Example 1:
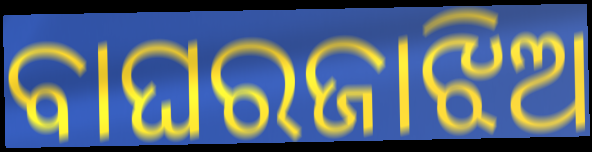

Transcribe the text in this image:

ବାଘରଜାଝିଅ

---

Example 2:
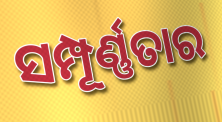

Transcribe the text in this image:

ସମ୍ପୂର୍ଣ୍ଣତାର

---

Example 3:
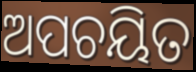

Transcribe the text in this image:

ଅପଚୟିତ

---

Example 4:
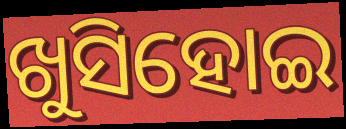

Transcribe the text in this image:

ଖୁସିହୋଇ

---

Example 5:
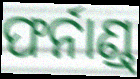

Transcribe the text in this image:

ଫର୍ନାଣ୍ଡ୍